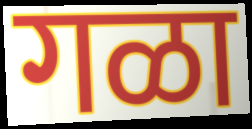
गळा